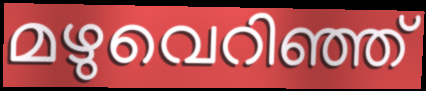
മഴുവെറിഞ്ഞ്